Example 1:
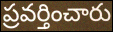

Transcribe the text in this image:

ప్రవర్తించారు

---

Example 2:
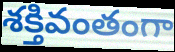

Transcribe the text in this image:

శక్తివంతంగా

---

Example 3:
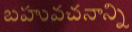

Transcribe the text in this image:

బహువచనాన్ని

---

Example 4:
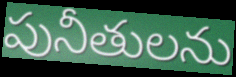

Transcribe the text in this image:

పునీతులను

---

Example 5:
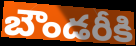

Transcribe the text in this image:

బౌండరీకి